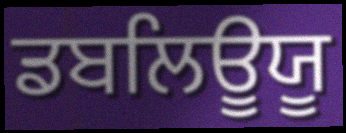
ਡਬਲਿਊਯੂ